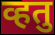
व्हतु